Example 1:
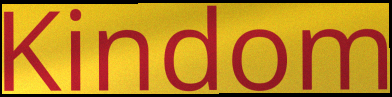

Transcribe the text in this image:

Kindom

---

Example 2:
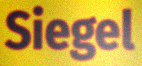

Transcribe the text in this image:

Siegel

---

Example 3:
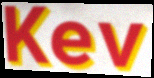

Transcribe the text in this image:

Kev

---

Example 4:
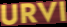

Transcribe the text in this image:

URVI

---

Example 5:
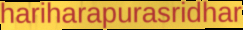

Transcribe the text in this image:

hariharapurasridhar